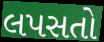
લપસતો